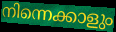
നിന്നെക്കാളും